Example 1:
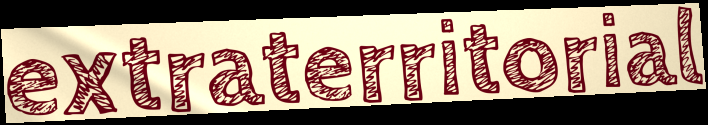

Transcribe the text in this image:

extraterritorial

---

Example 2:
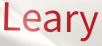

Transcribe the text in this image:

Leary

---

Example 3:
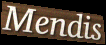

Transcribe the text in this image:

Mendis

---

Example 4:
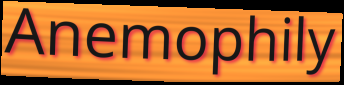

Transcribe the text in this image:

Anemophily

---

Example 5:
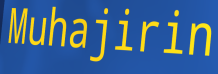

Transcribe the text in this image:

Muhajirin